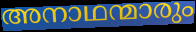
അനാഥന്മാരും